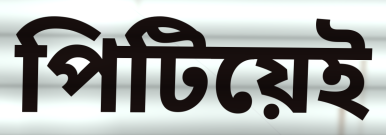
পিটিয়েই